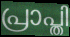
പ്രാപ്തി